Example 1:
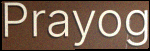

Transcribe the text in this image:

Prayog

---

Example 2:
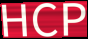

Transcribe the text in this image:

HCP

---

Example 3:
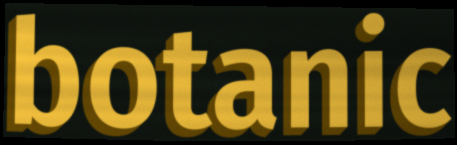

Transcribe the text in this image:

botanic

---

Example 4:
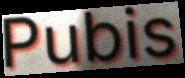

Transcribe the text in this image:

Pubis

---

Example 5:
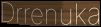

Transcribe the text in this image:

Drrenuka